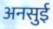
अनसुई